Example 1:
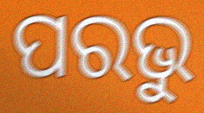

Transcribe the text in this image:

ପରଭୁ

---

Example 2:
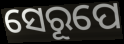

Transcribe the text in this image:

ସେରୂପେ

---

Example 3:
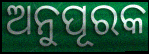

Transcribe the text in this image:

ଅନୁପୂରକ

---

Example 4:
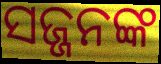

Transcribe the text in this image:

ସଜ୍ଜନଙ୍କ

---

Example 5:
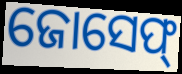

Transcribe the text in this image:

ଜୋସେଫ୍